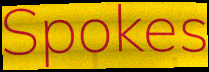
Spokes